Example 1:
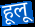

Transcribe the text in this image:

हूलू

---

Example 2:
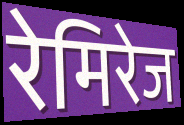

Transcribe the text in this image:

रेमिरेज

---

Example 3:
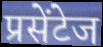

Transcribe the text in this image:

प्रसेंटेज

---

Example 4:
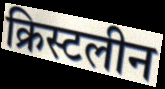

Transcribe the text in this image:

क्रिस्टलीन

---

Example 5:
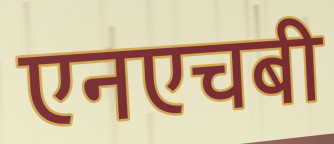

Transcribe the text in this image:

एनएचबी